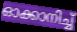
ഓക്കാനിച്ച്